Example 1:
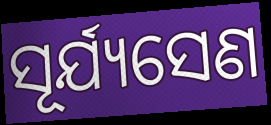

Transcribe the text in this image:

ସୂର୍ଯ୍ୟସେଣ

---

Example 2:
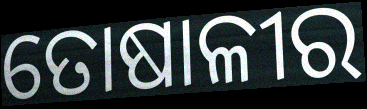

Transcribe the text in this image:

ତୋଷାଳୀର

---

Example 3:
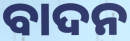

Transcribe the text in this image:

ବାଦନ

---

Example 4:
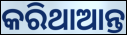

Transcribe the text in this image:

କରିଥାଆନ୍ତ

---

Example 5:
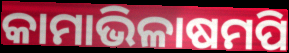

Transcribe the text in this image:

କାମାଭିଳାଷମପି